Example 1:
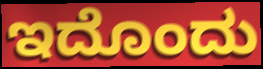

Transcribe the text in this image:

ಇದೊಂದು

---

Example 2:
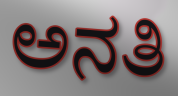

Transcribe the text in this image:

ಅನತಿ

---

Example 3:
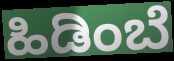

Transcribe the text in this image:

ಹಿಡಿಂಬೆ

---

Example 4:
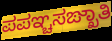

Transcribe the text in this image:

ಪಪಞ್ಚಸಙ್ಖಾತಿ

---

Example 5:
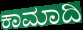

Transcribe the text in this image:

ಕಾಮಾದಿ